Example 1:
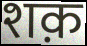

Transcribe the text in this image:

शक़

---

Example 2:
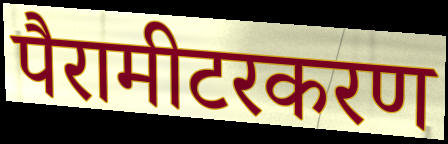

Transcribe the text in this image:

पैरामीटरकरण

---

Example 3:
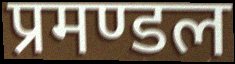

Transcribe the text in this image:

प्रमण्डल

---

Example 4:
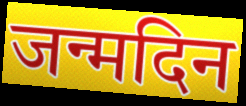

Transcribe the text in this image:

जन्मदिन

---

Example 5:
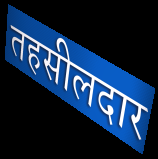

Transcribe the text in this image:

तहसीलदार